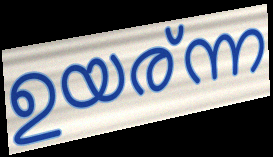
ഉയര്ന്ന